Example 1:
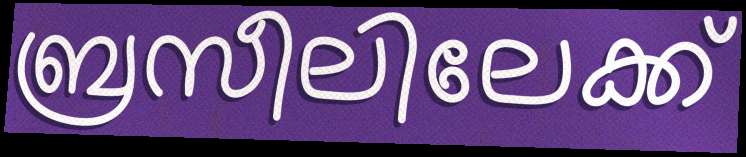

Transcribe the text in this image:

ബ്രസീലിലേക്ക്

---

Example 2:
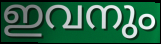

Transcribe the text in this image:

ഇവനും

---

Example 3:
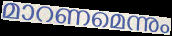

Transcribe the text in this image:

മാറണമെന്നും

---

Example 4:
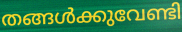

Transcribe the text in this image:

തങ്ങൾക്കുവേണ്ടി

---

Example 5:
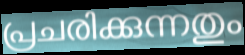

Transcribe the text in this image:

പ്രചരിക്കുന്നതും